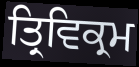
ਤ੍ਰਿਵਿਕ੍ਰਮ